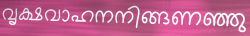
വൃക്ഷവാഹനനിങ്ങണഞ്ഞു